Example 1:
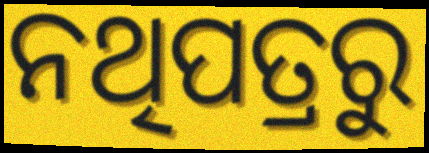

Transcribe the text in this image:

ନଥିପତ୍ରରୁ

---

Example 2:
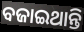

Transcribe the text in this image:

ବଜାଇଥାନ୍ତି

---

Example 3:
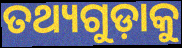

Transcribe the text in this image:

ତଥ୍ୟଗୁଡ଼ାକୁ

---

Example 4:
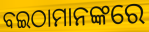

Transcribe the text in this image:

ବଇଠାମାନଙ୍କରେ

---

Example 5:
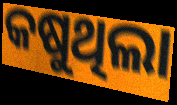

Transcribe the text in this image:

କଷୁଥିଲା